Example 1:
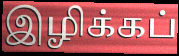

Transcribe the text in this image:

இழிக்கப்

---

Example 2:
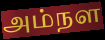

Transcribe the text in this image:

அம்நள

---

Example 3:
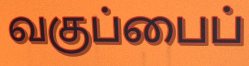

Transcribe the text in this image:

வகுப்பைப்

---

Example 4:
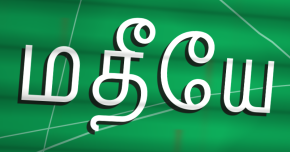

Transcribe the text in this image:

மதீயே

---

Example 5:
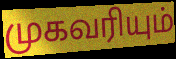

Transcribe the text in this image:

முகவரியும்